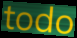
todo